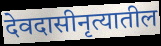
देवदासीनृत्यातील